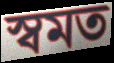
স্বমত